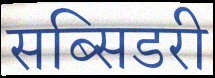
सब्सिडरी